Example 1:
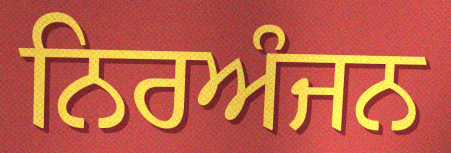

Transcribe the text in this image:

ਨਿਰਅੰਜਨ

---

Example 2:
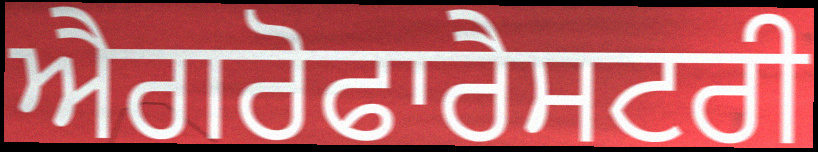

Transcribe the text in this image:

ਐਗਰੋਫਾਰੈਸਟਰੀ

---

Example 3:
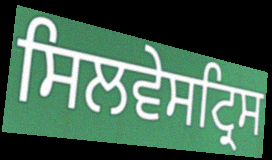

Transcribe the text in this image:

ਸਿਲਵੇਸਟ੍ਰਿਸ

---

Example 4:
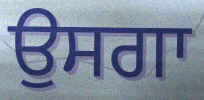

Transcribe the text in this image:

ਉਸਗਾ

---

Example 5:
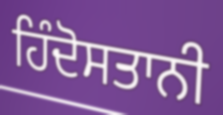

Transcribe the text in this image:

ਹਿੰਦੋਸਤਾਨੀ